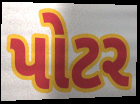
પોટર